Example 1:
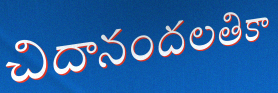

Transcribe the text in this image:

చిదానందలతికా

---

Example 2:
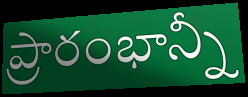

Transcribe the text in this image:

ప్రారంభాన్నీ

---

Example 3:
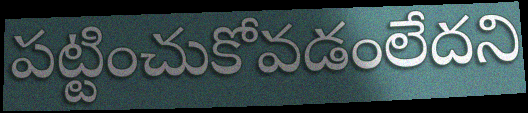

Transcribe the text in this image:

పట్టించుకోవడంలేదని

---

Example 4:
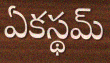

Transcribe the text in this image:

ఏకస్థమ్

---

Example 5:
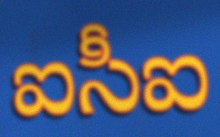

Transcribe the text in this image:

ఐసీఐ